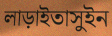
লাড়াইতাসুইন